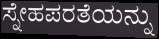
ಸ್ನೇಹಪರತೆಯನ್ನು